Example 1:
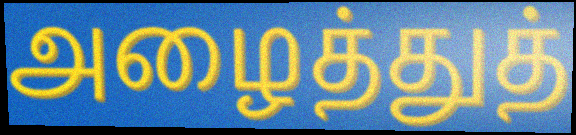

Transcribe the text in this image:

அழைத்துத்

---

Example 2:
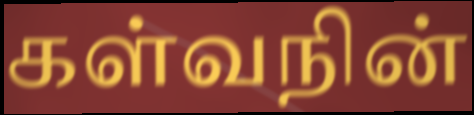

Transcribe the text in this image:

கள்வநின்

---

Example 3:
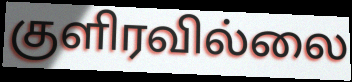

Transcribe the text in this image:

குளிரவில்லை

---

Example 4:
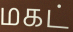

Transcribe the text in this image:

மகட்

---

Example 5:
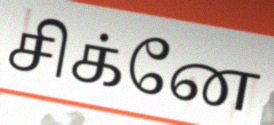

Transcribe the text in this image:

சிக்னே